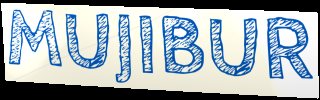
MUJIBUR